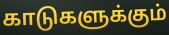
காடுகளுக்கும்